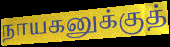
நாயகனுக்குத்